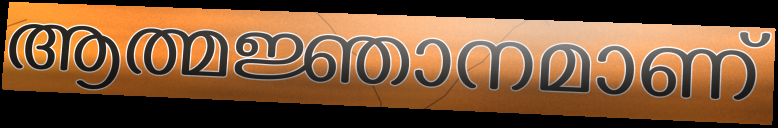
ആത്മജ്ഞാനമാണ്